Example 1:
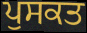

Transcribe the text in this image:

ਪੁਸਕਤ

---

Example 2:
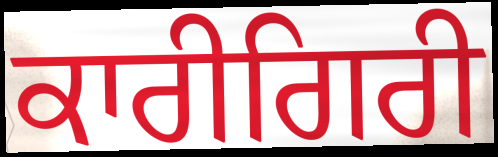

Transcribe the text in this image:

ਕਾਰੀਗਿਰੀ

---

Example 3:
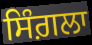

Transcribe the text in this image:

ਸਿੰਗ਼ਲਾ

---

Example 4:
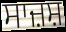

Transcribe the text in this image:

ਸਾਜ਼ਸ਼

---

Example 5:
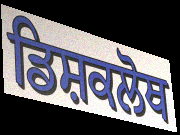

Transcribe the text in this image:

ਡਿਸ਼ਕਲੋਥ